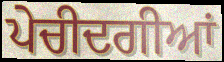
ਪੇਚੀਦਗੀਆਂ